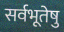
सर्वभूतेषु